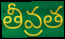
తీవ్రత